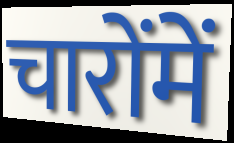
चारोंमें